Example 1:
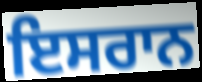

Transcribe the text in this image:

ਇਸਰਾਨ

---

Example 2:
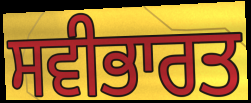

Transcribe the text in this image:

ਸਵੀਭਾਰਤ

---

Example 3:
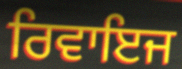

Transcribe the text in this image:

ਰਿਵਾਇਜ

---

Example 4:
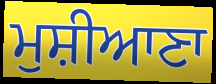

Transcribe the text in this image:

ਮੁਸ਼ੀਆਣਾ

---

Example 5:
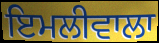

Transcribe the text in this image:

ਇਮਲੀਵਾਲਾ